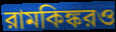
রামকিঙ্করও